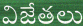
విజేతలు